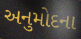
અનુમોદના